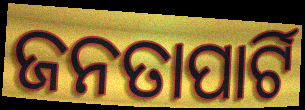
ଜନତାପାର୍ଟି